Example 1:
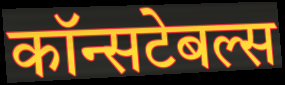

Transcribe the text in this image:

कॉन्सटेबल्स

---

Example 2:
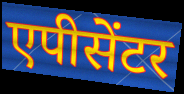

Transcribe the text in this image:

एपीसेंटर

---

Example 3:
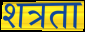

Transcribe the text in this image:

शत्रता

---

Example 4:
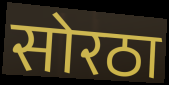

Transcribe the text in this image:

सोरठा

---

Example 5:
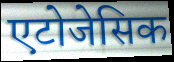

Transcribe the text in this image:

एटोजेसिक